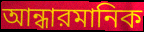
আন্ধারমানিক